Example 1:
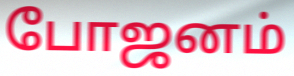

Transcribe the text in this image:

போஜனம்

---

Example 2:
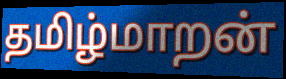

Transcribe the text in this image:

தமிழ்மாறன்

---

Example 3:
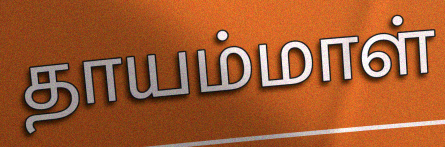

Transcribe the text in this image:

தாயம்மாள்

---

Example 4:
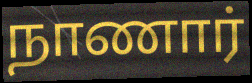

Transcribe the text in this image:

நாணார்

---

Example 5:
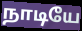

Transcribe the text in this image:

நாடியே